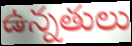
ఉన్నతులు